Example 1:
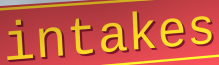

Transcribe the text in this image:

intakes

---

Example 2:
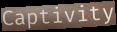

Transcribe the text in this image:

Captivity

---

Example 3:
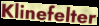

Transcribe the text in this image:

Klinefelter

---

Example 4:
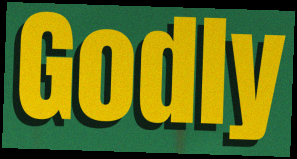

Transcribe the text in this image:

Godly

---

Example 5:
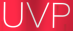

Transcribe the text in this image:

UVP